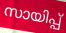
സായിപ്പ്